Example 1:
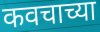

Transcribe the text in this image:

कवचाच्या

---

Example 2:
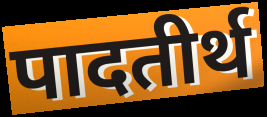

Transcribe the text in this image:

पादतीर्थ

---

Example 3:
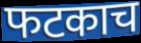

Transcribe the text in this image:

फटकाच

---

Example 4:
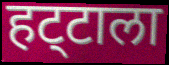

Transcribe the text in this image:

हट्‌टाला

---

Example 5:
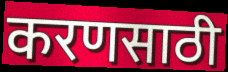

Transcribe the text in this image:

करणसाठी